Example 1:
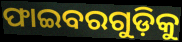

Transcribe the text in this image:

ଫାଇବରଗୁଡ଼ିକୁ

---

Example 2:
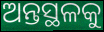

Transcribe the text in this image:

ଅନ୍ତସ୍ଥଳକୁ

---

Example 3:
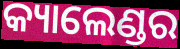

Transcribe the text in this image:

କ୍ୟାଲେଣ୍ଡର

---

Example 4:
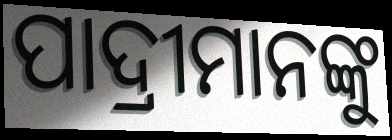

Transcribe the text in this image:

ପାଦ୍ରୀମାନଙ୍କୁ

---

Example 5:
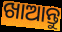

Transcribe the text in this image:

ଖାଆନ୍ତୁ